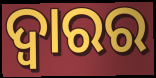
ଦ୍ୱାରର